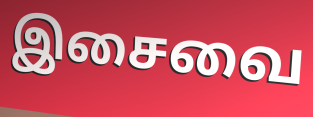
இசைவை